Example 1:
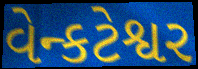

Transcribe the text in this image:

વેન્કટેશ્વર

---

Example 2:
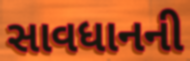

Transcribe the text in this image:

સાવધાનની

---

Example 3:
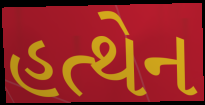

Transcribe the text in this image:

હત્થેન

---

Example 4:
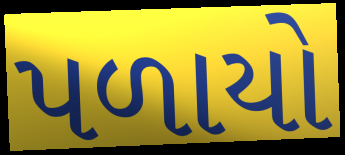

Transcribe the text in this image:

પળાયો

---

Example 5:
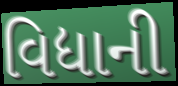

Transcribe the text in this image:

વિદ્યાની